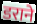
डराने